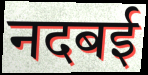
नदबई